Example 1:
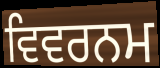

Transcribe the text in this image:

ਵਿਵਰਨਮ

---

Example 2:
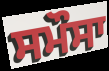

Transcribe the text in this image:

ਸਮੌਸਾ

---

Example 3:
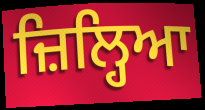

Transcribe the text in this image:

ਜ਼ਿਲ੍ਹਿਆ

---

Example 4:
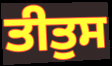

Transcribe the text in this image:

ਤੀਤੁਸ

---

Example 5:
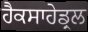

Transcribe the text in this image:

ਹੈਕਸਾਹੇਡ੍ਰਲ